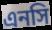
এনসি